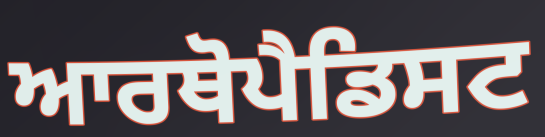
ਆਰਥੋਪੈਡਿਸਟ